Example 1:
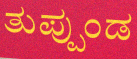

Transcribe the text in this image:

ತುಪ್ಪುಂಡ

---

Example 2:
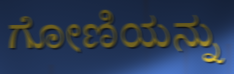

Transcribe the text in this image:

ಗೋಣಿಯನ್ನು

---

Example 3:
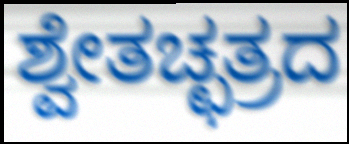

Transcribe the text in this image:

ಶ್ವೇತಚ್ಛತ್ರದ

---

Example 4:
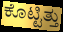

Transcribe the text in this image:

ಕೊಟ್ಟಿತ್ತು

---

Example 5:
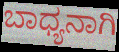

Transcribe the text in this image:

ಬಾಧ್ಯನಾಗಿ